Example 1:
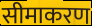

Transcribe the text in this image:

सीमाकरण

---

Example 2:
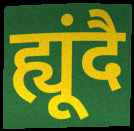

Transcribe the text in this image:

ह्यूंदै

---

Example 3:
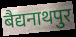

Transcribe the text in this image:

बैद्यनाथपुर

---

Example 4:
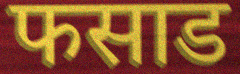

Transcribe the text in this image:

फसाड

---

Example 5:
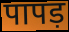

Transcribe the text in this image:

पापड़